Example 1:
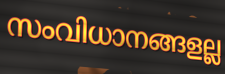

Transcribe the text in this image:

സംവിധാനങ്ങളല്ല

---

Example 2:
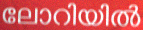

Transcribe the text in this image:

ലോറിയിൽ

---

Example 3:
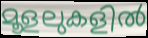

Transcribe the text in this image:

മൂളലുകളിൽ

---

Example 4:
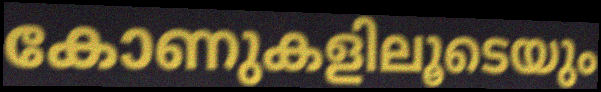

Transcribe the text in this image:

കോണുകളിലൂടെയും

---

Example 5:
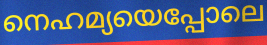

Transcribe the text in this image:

നെഹമ്യയെപ്പോലെ